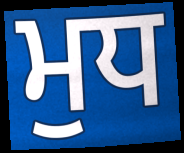
ਮੁਧ